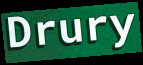
Drury